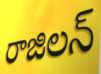
రాజిలన్